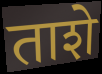
ताशे